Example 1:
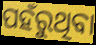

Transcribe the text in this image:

ପହଁରୁଥିବା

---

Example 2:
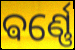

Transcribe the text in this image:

ଵର୍ଣ୍ଣେ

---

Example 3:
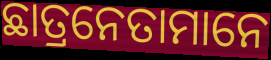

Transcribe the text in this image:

ଛାତ୍ରନେତାମାନେ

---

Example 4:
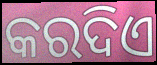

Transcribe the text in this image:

କରଦିଏ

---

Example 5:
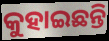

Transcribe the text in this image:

କୁହାଇଛନ୍ତି